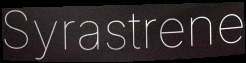
Syrastrene